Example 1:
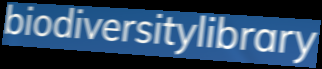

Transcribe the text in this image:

biodiversitylibrary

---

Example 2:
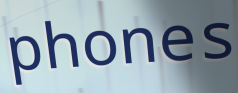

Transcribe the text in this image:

phones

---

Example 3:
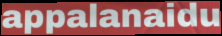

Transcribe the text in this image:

appalanaidu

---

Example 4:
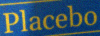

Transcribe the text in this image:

Placebo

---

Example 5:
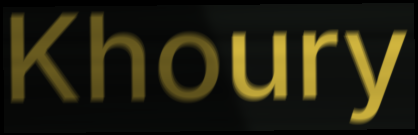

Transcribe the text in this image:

Khoury